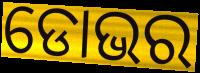
ଡୋଭର